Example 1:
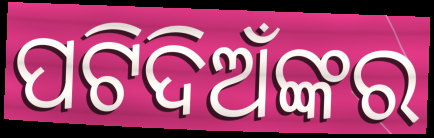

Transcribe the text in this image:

ପଟିଦିଅଁଙ୍କର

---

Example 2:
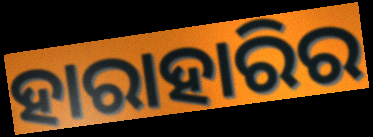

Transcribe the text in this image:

ହାରାହାରିର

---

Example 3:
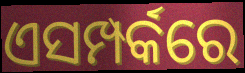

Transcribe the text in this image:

ଏସମ୍ପର୍କରେ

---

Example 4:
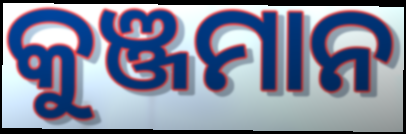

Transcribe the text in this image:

କୁଞ୍ଜମାନ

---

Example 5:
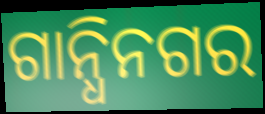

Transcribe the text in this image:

ଗାନ୍ଧିନଗର